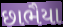
છાભૈયા